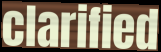
clarified